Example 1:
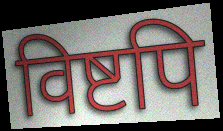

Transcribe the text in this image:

विष्टपि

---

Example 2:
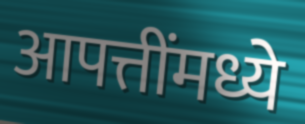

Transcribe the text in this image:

आपत्तींमध्ये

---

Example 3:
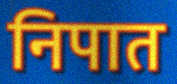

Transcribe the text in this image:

निपात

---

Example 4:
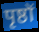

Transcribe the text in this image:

पृष्ठों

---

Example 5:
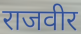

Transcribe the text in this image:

राजवीर